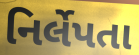
નિર્લેપતા